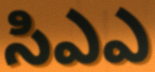
సిఎఎ